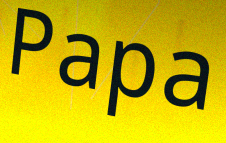
Papa